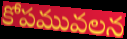
కోపమువలన